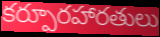
కర్పూరహారతులు